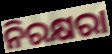
ନିରକ୍ଷରା